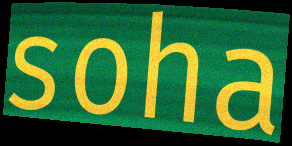
soha